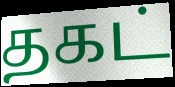
தகட்